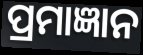
ପ୍ରମାଜ୍ଞାନ